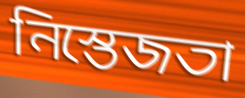
নিস্তেজতা